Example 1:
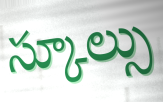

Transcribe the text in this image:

స్కూల్సు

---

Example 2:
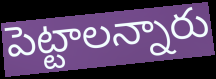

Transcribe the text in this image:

పెట్టాలన్నారు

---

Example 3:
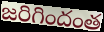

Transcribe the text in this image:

జరిగిందంత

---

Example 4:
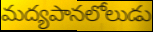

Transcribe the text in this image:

మద్యపానలోలుడు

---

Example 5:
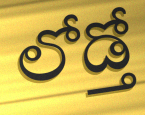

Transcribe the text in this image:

లోడ్తో